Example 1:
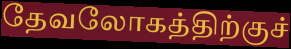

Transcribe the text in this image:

தேவலோகத்திற்குச்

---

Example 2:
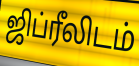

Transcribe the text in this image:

ஜிப்ரீலிடம்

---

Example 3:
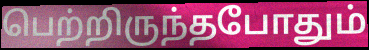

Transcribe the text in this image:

பெற்றிருந்தபோதும்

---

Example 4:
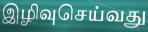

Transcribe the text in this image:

இழிவுசெய்வது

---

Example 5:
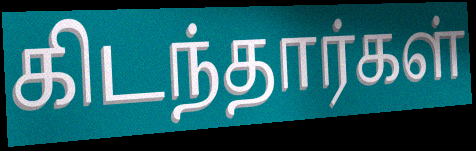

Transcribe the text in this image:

கிடந்தார்கள்